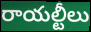
రాయల్టీలు